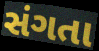
સંગતા